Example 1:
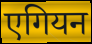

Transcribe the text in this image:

एगियन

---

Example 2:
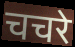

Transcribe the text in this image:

चचरे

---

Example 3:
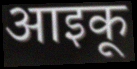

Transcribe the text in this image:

आइकू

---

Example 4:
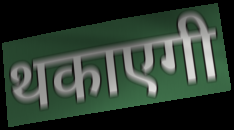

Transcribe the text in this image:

थकाएगी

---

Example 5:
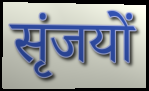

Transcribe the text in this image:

सृंजयों